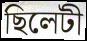
ছিলেটী